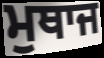
ਮੁਥਾਜ